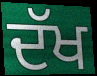
ਦੱਖ